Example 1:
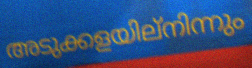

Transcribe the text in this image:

അടുക്കളയില്നിന്നും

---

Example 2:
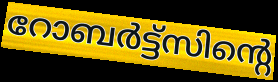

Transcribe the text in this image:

റോബർട്ട്സിന്റെ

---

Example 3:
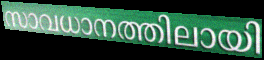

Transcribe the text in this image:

സാവധാനത്തിലായി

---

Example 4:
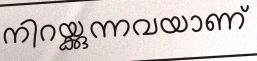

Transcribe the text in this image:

നിറയ്ക്കുന്നവയാണ്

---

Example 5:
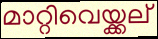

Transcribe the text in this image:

മാറ്റിവെയ്ക്കല്